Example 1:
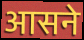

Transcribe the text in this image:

आसने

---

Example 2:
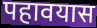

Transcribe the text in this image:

पहावयास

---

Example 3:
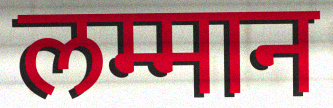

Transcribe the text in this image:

लम्मान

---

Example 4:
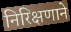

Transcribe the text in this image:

निरिक्षणाने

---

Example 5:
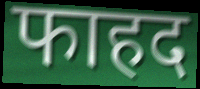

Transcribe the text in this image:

फाहद